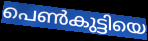
പെൺകുട്ടിയെ